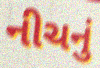
નીચનું